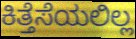
ಕಿತ್ತೆಸೆಯಲಿಲ್ಲ